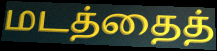
மடத்தைத்